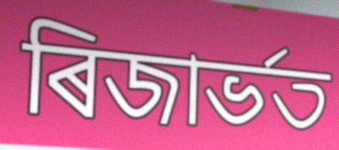
ৰিজাৰ্ভত